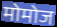
मोमोज